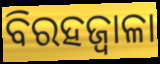
ବିରହଜ୍ୱାଳା